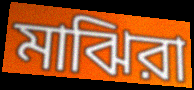
মাঝিরা